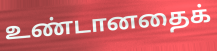
உண்டானதைக்